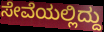
ಸೇವೆಯಲ್ಲಿದ್ದು